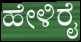
ಹೇಳಿರೈ